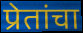
प्रेतांचा